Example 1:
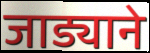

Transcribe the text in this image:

जाड्याने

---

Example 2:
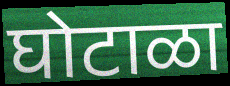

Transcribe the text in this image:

घोटाळा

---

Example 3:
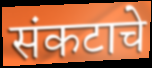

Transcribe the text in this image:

संकटाचे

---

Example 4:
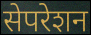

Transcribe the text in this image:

सेपरेशन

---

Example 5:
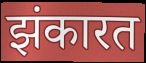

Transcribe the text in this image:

झंकारत